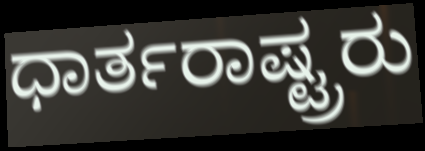
ಧಾರ್ತರಾಷ್ಟ್ರರು